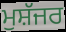
ਮੁਸ਼ੱਜਰ